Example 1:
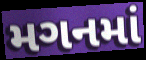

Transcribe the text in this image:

મગનમાં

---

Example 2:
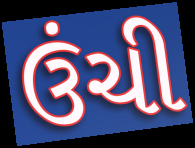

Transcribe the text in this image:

ઉંચી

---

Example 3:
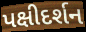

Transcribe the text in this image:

પક્ષીદર્શન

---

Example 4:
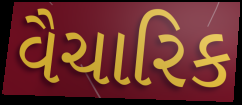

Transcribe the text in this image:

વૈચારિક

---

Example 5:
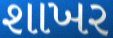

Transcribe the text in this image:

શાખર